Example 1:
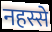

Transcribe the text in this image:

नहस्से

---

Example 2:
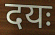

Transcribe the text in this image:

दयः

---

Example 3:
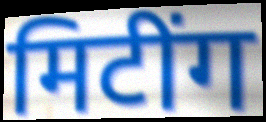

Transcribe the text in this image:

मिटींग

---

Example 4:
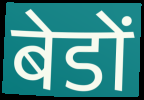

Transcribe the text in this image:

बेडों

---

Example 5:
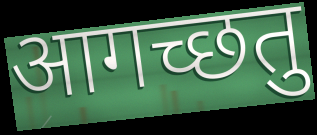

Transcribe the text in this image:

आगच्छतु